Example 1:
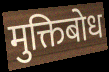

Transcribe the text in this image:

मुक्तिबोध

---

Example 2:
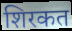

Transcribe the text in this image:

शिरकत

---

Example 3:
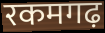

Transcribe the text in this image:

रकमगढ़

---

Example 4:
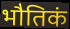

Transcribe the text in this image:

भौतिकं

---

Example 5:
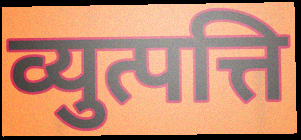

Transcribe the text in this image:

व्युत्पत्ति